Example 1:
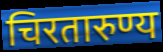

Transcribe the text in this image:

चिरतारुण्य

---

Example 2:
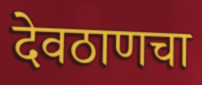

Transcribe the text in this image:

देवठाणचा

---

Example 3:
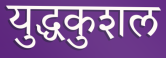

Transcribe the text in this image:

युद्धकुशल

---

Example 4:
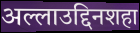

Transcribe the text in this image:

अल्लाउद्दिनशहा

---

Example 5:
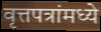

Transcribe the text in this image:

वृत्तपत्रांमध्ये